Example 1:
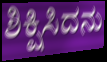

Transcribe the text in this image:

ಶಿಕ್ಷಿಸಿದನು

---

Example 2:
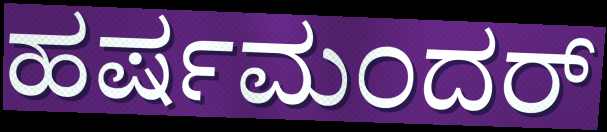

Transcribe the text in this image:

ಹರ್ಷಮಂದರ್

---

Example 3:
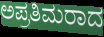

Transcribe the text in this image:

ಅಪ್ರತಿಮರಾದ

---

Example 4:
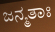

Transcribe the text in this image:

ಜನ್ಮತಾಃ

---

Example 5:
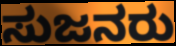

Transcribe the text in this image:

ಸುಜನರು